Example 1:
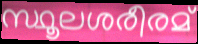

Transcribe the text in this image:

സ്ഥൂലശരീരമ്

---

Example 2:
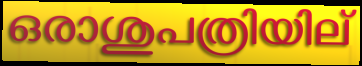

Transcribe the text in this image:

ഒരാശുപത്രിയില്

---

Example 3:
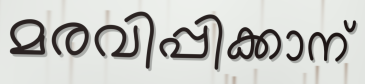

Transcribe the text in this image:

മരവിപ്പിക്കാന്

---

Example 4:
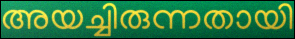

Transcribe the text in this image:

അയച്ചിരുന്നതായി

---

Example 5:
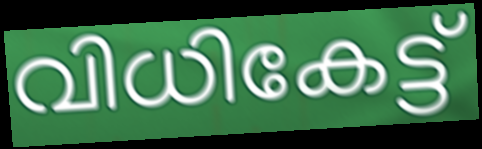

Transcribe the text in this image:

വിധികേട്ട്